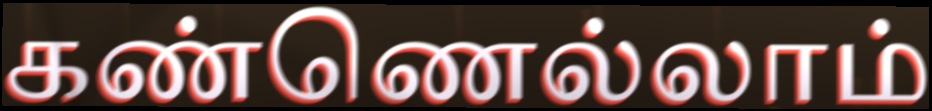
கண்ணெல்லாம்